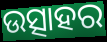
ଉତ୍ସାହର